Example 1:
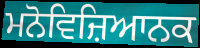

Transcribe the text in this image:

ਮਨੋਵਿਜ਼ਿਆਨਕ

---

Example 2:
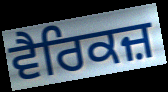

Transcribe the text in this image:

ਵੈਰਿਕਜ਼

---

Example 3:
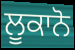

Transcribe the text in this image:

ਲੂਕਾਨੋ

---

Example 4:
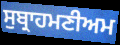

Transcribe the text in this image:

ਸੁਬ੍ਰਾਹਮਣੀਅਮ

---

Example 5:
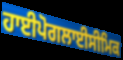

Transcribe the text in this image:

ਹਾਈਪੋਗਲਾਈਸੀਮਿਕ